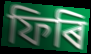
ফিৰি